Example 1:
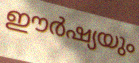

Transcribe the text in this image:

ഈർഷ്യയും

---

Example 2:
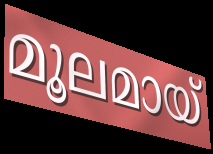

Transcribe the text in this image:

മൂലമായ്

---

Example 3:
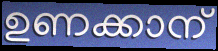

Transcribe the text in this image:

ഉണക്കാന്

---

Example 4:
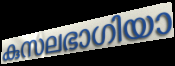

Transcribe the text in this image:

കുസലഭാഗിയാ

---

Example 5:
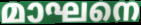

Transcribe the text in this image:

മാഘനെ